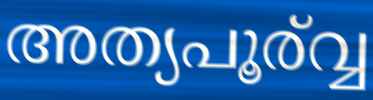
അത്യപൂര്വ്വ